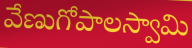
వేణుగోపాలస్వామి